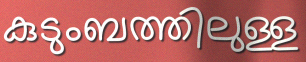
കുടുംബത്തിലുള്ള